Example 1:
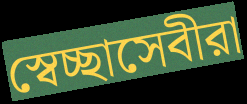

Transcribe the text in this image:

স্বেচ্ছাসেবীরা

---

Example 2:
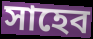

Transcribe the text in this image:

সাহেব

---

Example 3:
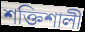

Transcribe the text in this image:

শক্তিশালী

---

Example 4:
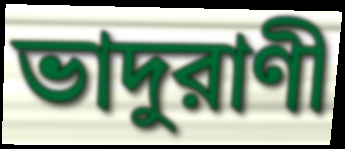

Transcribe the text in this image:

ভাদুরাণী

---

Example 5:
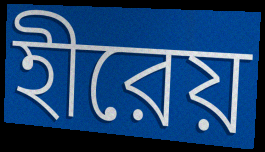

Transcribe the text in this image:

হীরেয়